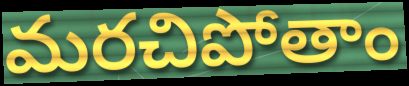
మరచిపోతాం